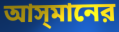
আস্‌মানের